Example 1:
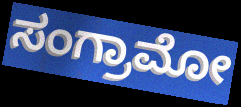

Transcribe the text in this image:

ಸಂಗ್ರಾಮೋ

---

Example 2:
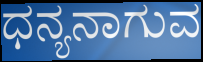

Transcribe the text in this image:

ಧನ್ಯನಾಗುವ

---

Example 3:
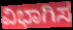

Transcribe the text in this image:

ವಿಭಾಗಿಸ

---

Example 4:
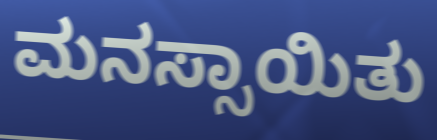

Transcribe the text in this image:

ಮನಸ್ಸಾಯಿತು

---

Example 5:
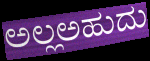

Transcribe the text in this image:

ಅಲ್ಲಅಹುದು